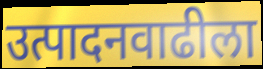
उत्पादनवाढीला